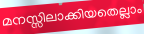
മനസ്സിലാക്കിയതെല്ലാം